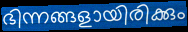
ഭിന്നങ്ങളായിരിക്കും